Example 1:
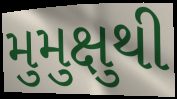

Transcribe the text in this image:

મુમુક્ષુથી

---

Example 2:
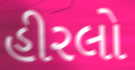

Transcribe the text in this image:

હીરલો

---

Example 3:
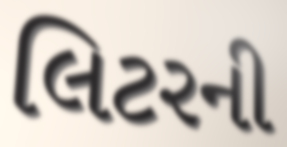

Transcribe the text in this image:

લિટરની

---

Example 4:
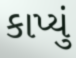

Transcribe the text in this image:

કાપ્યું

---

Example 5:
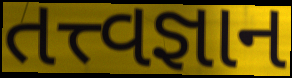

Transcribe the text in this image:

તત્ત્વજ્ઞાન